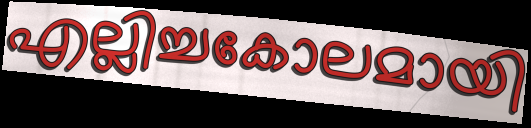
എല്ലിച്ചകോലമായി